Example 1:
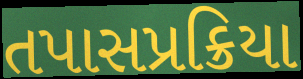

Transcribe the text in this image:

તપાસપ્રક્રિયા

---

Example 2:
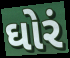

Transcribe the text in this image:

ઘોરં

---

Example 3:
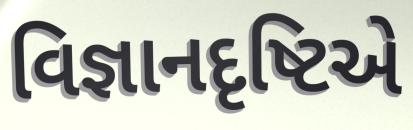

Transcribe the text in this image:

વિજ્ઞાનદૃષ્ટિએ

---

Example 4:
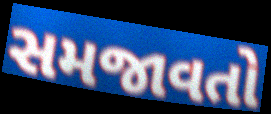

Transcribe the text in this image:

સમજાવતો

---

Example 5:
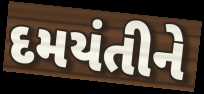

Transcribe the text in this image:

દમયંતીને